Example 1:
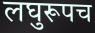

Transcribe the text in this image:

लघुरूपच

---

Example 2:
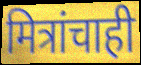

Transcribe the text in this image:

मित्रांचाही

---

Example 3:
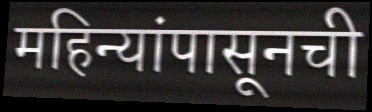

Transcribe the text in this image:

महिन्यांपासूनची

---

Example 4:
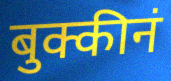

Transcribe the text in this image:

बुक्कीनं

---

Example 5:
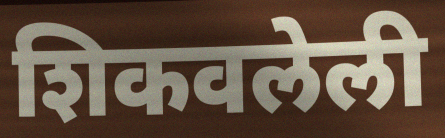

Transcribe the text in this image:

शिकवलेली